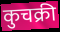
कुचक्री